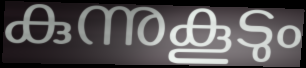
കുന്നുകൂടും